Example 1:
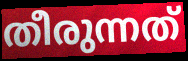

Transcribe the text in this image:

തീരുന്നത്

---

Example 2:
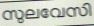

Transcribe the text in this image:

സുലവേസി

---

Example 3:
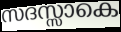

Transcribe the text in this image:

സദസ്സാകെ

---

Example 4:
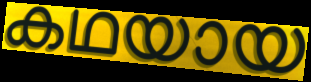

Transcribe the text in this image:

കഥയായ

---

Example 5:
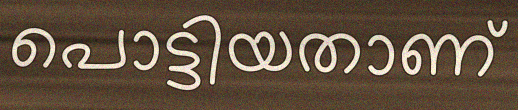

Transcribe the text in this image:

പൊട്ടിയതാണ്